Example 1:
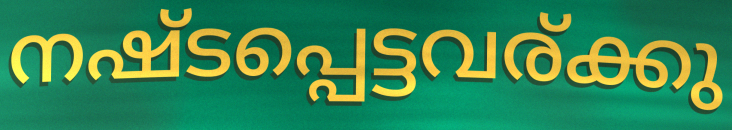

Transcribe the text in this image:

നഷ്ടപ്പെട്ടവര്ക്കു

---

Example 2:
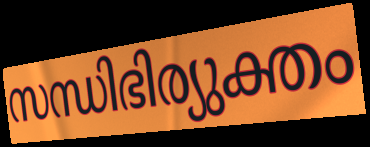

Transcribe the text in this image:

സന്ധിഭിര്യുക്തം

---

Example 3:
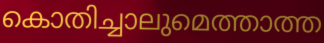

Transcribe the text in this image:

കൊതിച്ചാലുമെത്താത്ത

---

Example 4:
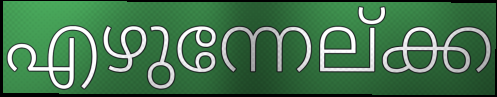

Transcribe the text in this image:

എഴുന്നേല്ക്ക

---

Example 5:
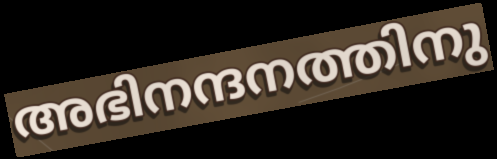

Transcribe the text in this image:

അഭിനന്ദനത്തിനു